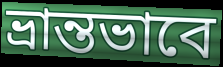
ভ্রান্তভাবে